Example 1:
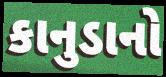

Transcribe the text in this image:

કાનુડાનો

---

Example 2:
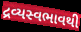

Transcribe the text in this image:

દ્રવ્યસ્વભાવથી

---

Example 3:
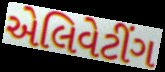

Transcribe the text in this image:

એલિવેટીંગ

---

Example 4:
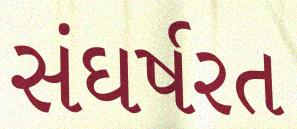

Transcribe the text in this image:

સંઘર્ષરત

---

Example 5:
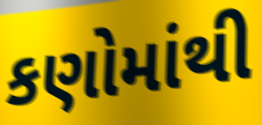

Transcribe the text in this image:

કણોમાંથી